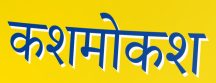
कशमोकश